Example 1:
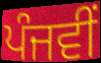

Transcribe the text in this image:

ਪੰਜਵੀਂ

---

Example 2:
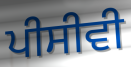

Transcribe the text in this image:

ਪੀਸੀਵੀ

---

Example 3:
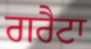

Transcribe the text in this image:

ਗਰੈਟਾ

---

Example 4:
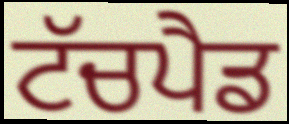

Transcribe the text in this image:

ਟੱਚਪੈਡ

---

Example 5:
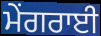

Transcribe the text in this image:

ਮੇਂਗਰਾਈ